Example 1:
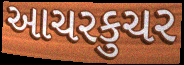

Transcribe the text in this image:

આચરકુચર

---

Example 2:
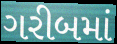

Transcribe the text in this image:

ગરીબમાં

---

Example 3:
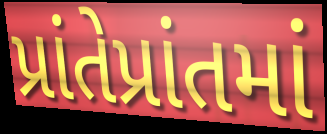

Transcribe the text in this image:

પ્રાંતેપ્રાંતમાં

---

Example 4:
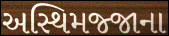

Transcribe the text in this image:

અસ્થિમજ્જાના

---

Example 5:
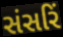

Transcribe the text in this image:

સંસરિં